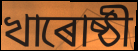
খাৰোষ্ঠী